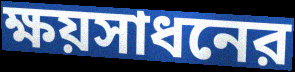
ক্ষয়সাধনের